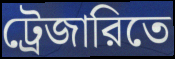
ট্রেজারিতে